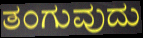
ತಂಗುವುದು